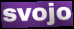
svojo